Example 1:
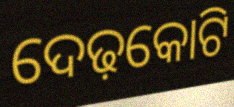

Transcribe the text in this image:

ଦେଢ଼କୋଟି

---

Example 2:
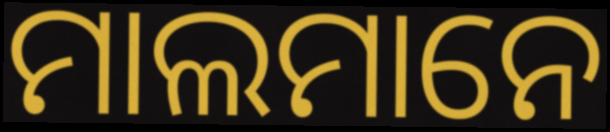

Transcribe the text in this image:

ମାଲମାନେ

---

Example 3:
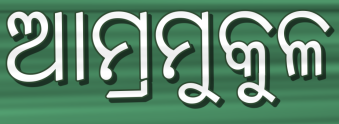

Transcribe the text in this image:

ଆମ୍ରମୁକୁଳ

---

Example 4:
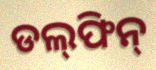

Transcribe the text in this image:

ଡଲ୍‍ଫିନ୍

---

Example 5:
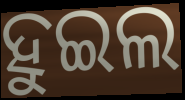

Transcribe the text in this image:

ହୁଇଲ